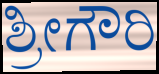
ಶ್ರೀಗೌರಿ